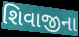
શિવાજીના